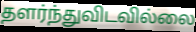
தளர்ந்துவிடவில்லை